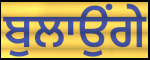
ਬੁਲਾਉਂਗੇ